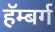
हॅम्बर्ग